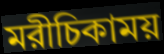
মরীচিকাময়